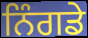
ਨਿੰਗਡੇ